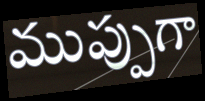
ముప్పుగా